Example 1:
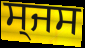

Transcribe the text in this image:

ਸ੍ਜਸ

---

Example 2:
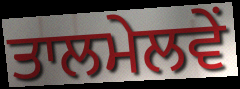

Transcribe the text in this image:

ਤਾਲਮੇਲਵੇਂ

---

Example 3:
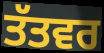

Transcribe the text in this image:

ਤੱਤਵਰ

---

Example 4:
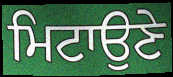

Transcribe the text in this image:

ਮਿਟਾਉਣੇ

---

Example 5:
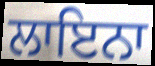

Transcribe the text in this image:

ਲਾਇਨਾ